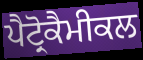
ਪੈਟ੍ਰੋਕੈਮੀਕਲ